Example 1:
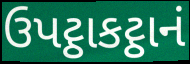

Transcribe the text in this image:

ઉપટ્ઠાકટ્ઠાનં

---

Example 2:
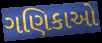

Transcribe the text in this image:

ગણિકાઓ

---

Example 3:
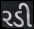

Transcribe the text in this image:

રડી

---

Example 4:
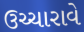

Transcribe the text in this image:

ઉચ્ચારાવે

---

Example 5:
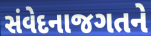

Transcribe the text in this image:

સંવેદનાજગતને